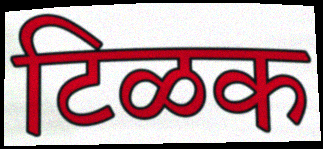
टिळक